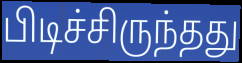
பிடிச்சிருந்தது